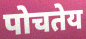
पोचतेय